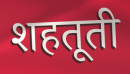
शहतूती